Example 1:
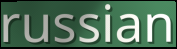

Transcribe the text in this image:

russian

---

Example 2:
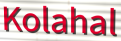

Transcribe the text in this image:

Kolahal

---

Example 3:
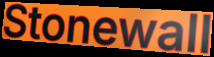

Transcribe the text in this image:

Stonewall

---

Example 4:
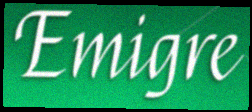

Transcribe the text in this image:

Emigre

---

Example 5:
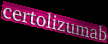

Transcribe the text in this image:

certolizumab